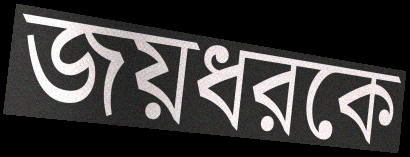
জয়ধরকে